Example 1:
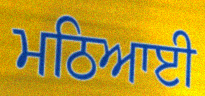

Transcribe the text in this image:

ਮਠਿਆਈ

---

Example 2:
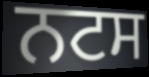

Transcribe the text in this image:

ਨਟਸ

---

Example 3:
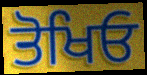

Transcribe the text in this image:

ਤੋਖਿਓ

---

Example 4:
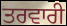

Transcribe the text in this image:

ਤਰਵਾਰੀ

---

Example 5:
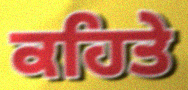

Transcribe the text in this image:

ਕਹਿਤੇ